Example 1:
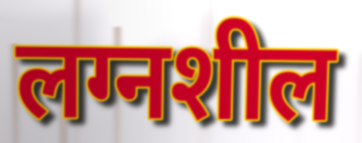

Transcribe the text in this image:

लग्नशील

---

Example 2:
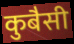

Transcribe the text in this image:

कुबैसी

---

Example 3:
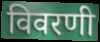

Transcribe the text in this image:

विवरणी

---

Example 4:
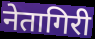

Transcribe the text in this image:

नेतागिरी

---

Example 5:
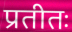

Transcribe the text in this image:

प्रतीतः